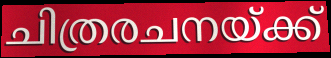
ചിത്രരചനയ്ക്ക്